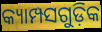
କ୍ୟାମ୍ପସଗୁଡ଼ିକ